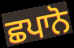
ਛਪਾਨੋ